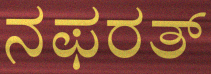
ನಫರತ್